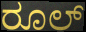
ರೂಲ್